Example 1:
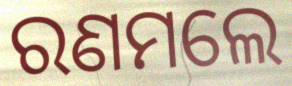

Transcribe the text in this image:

ରଣମଲେ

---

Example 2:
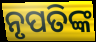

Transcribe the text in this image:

ନୃପତିଙ୍କ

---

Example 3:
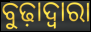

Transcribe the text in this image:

ବୁଢ଼ାଦ୍ୱାରା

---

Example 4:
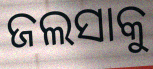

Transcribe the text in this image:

ଜଲସାକୁ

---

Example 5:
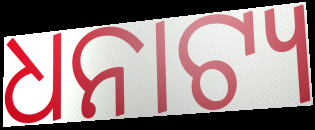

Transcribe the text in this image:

ଧନାଟ୍ୟ